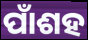
ପାଁଶହ